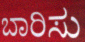
ಬಾರಿಸು